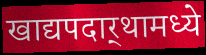
खाद्यपदार्थामध्ये